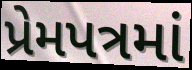
પ્રેમપત્રમાં